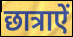
छात्राऐं